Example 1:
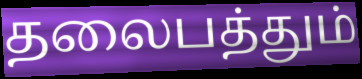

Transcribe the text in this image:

தலைபத்தும்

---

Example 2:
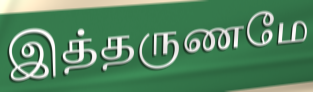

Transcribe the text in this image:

இத்தருணமே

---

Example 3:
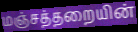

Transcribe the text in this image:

மஞ்சத்தறையின்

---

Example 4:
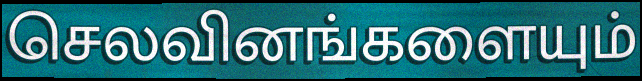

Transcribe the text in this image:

செலவினங்களையும்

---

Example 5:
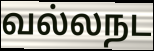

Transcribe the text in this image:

வல்லநட